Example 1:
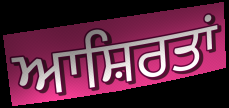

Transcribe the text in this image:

ਆਸ਼ਿਰਤਾਂ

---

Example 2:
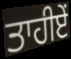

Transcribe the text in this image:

ਤਾਹੀਏਂ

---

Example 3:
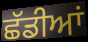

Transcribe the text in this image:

ਛੱਡੀਆਂ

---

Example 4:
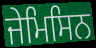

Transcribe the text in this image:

ਜੇਮਿਸਿਨ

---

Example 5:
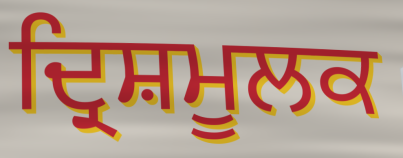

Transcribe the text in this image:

ਦ੍ਰਿਸ਼ਮੂਲਕ